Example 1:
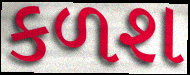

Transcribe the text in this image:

કળશ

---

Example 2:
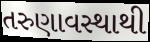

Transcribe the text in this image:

તરુણાવસ્થાથી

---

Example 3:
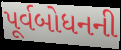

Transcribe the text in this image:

પૂર્વબોધનની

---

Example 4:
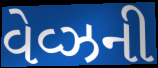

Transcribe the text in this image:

વેવ્ઝની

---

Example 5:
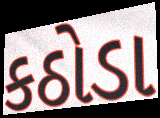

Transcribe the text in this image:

કઠોડા